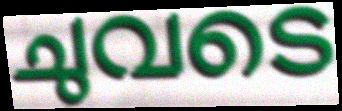
ചുവടെ